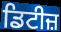
ਡਿਟੀਜ਼